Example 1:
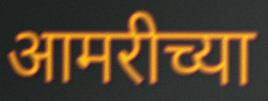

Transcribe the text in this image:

आमरीच्या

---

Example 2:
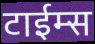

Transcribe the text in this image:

टाईम्स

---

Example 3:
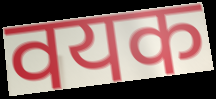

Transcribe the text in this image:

वयक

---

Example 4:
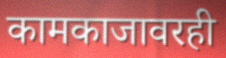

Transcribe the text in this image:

कामकाजावरही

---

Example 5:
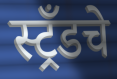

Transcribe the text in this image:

स्ट्रँडचे